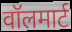
वॉलमार्ट